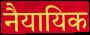
नैयायिक